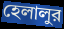
হেলালুর